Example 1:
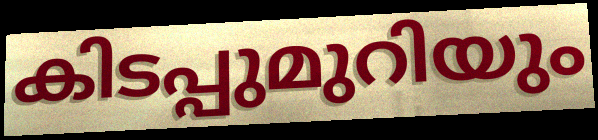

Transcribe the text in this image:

കിടപ്പുമുറിയും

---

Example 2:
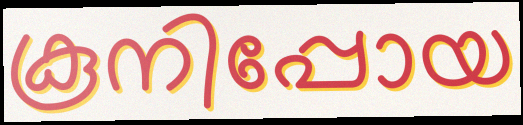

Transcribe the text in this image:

കൂനിപ്പോയ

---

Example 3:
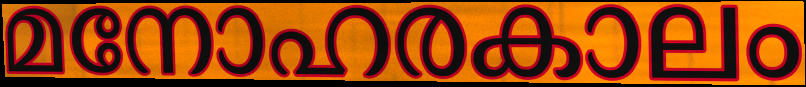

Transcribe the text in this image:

മനോഹരകാലം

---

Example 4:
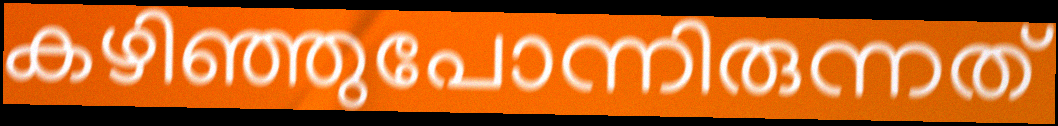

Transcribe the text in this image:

കഴിഞ്ഞുപോന്നിരുന്നത്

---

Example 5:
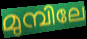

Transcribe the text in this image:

മുമ്പിലേ